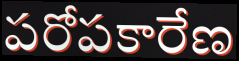
పరోపకారేణ